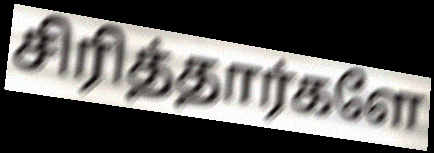
சிரித்தார்களே